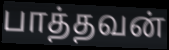
பாத்தவன்